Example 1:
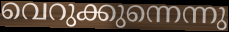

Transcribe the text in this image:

വെറുക്കുന്നെന്നു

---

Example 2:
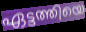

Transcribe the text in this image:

ഏട്ടത്തിയെ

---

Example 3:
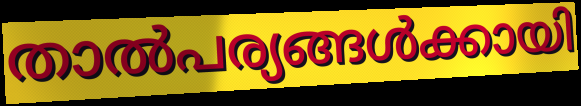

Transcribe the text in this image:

താൽപര്യങ്ങൾക്കായി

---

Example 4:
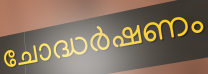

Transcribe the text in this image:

ചോദ്ധർഷണം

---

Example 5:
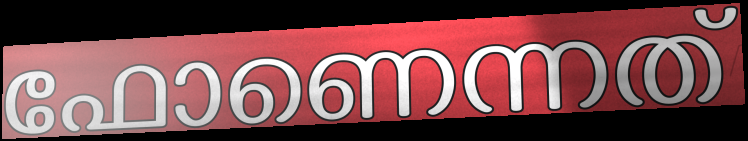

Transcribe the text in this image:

ഫോണെന്നത്